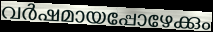
വർഷമായപ്പോഴേക്കും